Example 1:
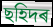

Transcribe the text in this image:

ছহিদৰ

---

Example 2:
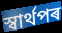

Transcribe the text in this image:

স্বাৰ্থপৰ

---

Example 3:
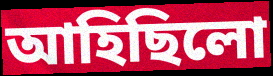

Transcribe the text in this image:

আহিছিলো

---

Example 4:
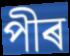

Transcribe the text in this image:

পীৰ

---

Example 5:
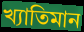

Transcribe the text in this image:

খ্যাতিমান